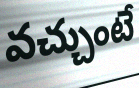
వచ్చుంటే